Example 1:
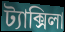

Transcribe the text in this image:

ট্যাক্সিলা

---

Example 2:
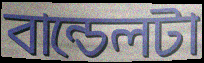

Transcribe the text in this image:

বান্ডেলটা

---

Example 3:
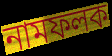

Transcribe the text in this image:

নামফলক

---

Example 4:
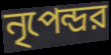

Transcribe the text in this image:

নৃপেন্দ্রর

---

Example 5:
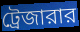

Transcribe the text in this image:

ট্রেজারার